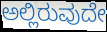
ಅಲ್ಲಿರುವುದೇ